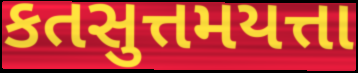
કતસુત્તમયત્તા